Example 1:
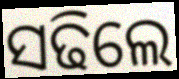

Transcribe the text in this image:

ସଢିଲେ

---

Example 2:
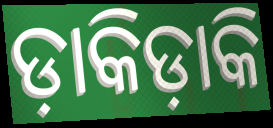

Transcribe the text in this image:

ଡ଼ାକିଡ଼ାକି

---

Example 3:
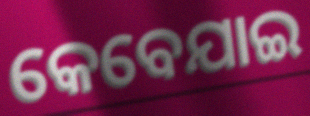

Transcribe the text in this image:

କେବେଯାଇ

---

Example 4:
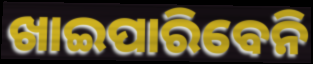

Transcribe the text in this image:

ଖାଇପାରିବେନି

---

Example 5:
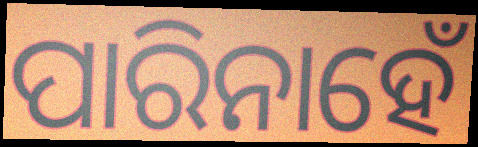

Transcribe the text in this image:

ପାରିନାହେଁ